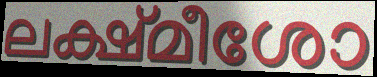
ലക്ഷ്മീശോ